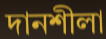
দানশীলা